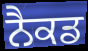
ਨੈਕਡ